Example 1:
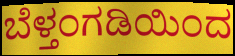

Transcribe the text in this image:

ಬೆಳ್ತಂಗಡಿಯಿಂದ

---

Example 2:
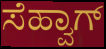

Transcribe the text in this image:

ಸೆಹ್ವಾಗ್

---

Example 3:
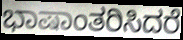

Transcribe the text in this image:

ಭಾಷಾಂತರಿಸಿದರೆ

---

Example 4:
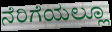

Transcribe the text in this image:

ನೆರಿಗೆಯಲ್ಲೂ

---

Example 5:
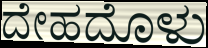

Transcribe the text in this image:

ದೇಹದೊಳು